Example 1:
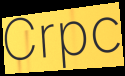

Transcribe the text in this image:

Crpc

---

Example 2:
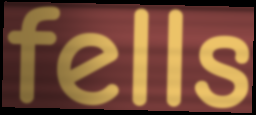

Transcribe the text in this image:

fells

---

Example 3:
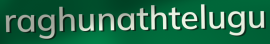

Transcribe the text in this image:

raghunathtelugu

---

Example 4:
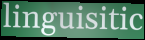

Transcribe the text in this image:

linguisitic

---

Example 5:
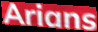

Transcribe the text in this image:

Arians